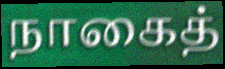
நாகைத்